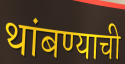
थांबण्याची